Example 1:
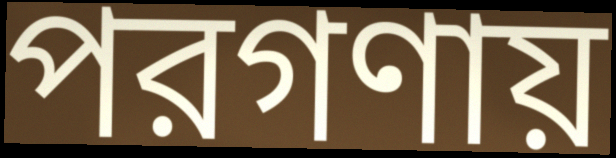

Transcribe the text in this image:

পরগণায়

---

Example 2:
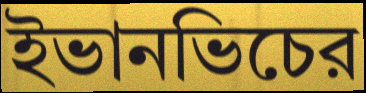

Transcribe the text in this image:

ইভানভিচের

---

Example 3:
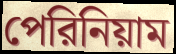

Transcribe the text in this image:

পেরিনিয়াম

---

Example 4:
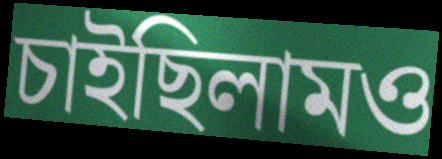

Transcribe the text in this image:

চাইছিলামও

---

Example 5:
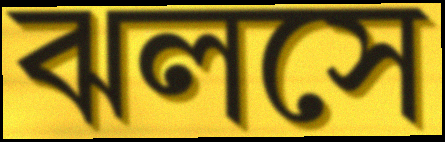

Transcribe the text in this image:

ঝলসে